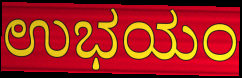
ಉಭಯಂ